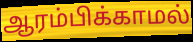
ஆரம்பிக்காமல்